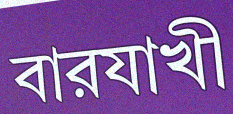
বারযাখী